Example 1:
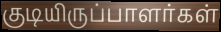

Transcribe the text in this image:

குடியிருப்பாளர்கள்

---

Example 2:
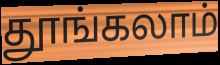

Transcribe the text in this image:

தூங்கலாம்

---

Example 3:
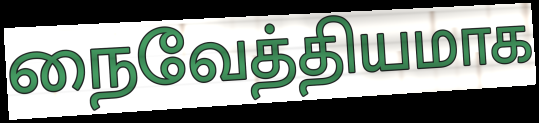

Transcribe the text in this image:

நைவேத்தியமாக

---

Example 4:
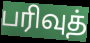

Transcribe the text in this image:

பரிவுத்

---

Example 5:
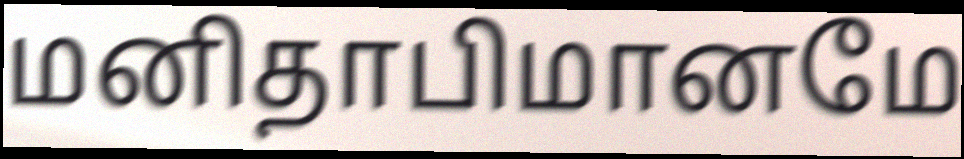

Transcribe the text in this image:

மனிதாபிமானமே